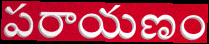
పరాయణం